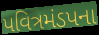
પવિત્રમંડપના